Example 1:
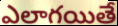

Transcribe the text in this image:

ఎలాగయితే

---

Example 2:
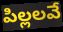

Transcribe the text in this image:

పిల్లలవే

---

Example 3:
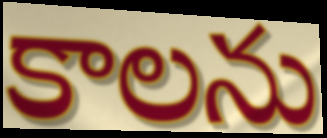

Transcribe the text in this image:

కాలను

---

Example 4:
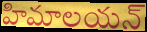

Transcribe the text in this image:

హిమాలయన్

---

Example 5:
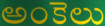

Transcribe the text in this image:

అంకెలు